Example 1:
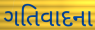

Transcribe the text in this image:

ગતિવાદના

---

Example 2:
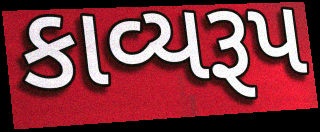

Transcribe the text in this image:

કાવ્યરૂપ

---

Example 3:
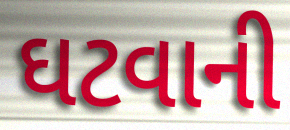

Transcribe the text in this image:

ઘટવાની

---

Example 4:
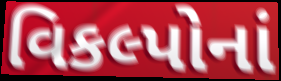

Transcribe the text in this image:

વિકલ્પોનાં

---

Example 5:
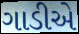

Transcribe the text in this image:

ગાડીએ